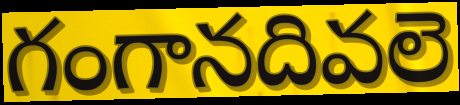
గంగానదివలె